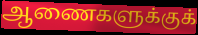
ஆணைகளுக்குக்